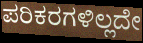
ಪರಿಕರಗಳಿಲ್ಲದೇ